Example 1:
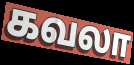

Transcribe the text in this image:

கவலா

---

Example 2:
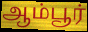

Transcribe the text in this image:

ஆம்பூர்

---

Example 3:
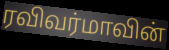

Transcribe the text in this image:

ரவிவர்மாவின்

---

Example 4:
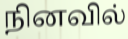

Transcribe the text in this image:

நினவில்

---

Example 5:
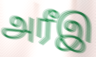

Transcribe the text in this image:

அரீஇ